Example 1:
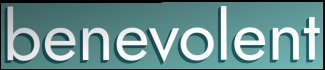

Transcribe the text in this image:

benevolent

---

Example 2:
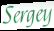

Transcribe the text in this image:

Sergey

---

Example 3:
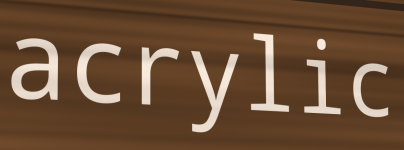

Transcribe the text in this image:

acrylic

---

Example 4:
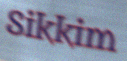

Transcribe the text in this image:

Sikkim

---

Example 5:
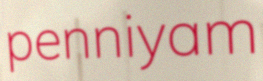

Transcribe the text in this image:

penniyam